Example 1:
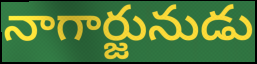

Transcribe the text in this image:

నాగార్జునుడు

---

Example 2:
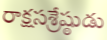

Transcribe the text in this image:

రాక్షసశ్రేష్ఠుడు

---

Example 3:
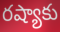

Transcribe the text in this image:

రష్యాకు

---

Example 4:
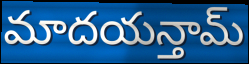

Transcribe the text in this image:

మాదయన్తామ్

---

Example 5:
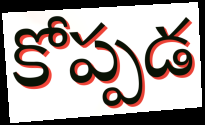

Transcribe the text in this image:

కోప్పడ